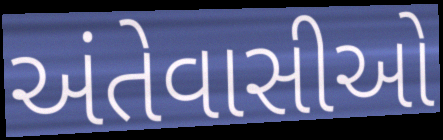
અંતેવાસીઓ